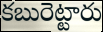
కబురెట్టారు